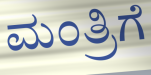
ಮಂತ್ರಿಗೆ